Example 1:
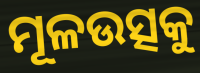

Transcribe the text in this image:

ମୂଳଉତ୍ସକୁ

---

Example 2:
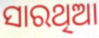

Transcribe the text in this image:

ସାରଥିଆ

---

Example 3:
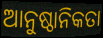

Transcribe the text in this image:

ଆନୁଷ୍ଠାନିକତା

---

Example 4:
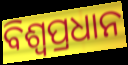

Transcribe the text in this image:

ବିଶ୍ୱପ୍ରଧାନ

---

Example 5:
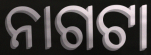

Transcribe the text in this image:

ନାଗଟା